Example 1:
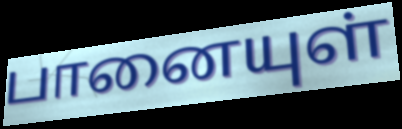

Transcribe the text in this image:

பானையுள்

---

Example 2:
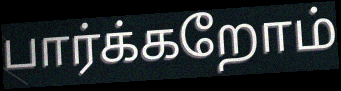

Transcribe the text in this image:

பார்க்கறோம்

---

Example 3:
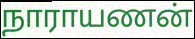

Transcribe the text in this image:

நாராயணன்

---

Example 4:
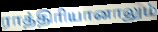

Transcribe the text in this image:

ராத்திரியானாலும்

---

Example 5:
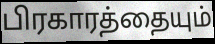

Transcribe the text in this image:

பிரகாரத்தையும்